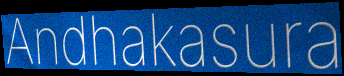
Andhakasura